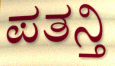
ಪತನ್ತಿ